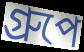
গ্রুপে